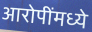
आरोपींमध्ये